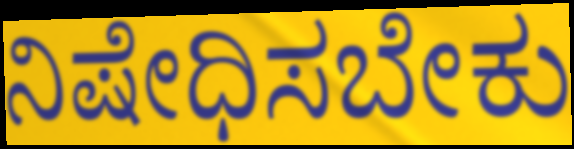
ನಿಷೇಧಿಸಬೇಕು